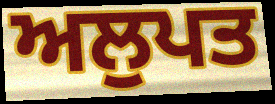
ਅਲੁਪਤ